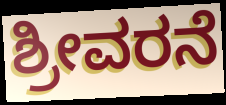
ಶ್ರೀವರನೆ